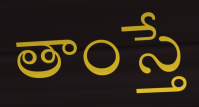
తాంస్తే